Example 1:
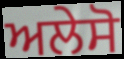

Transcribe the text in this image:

ਅਲੇਸੋ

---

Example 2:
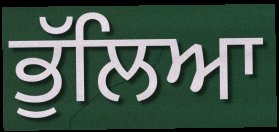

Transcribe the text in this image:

ਭੁੱਲਿਆ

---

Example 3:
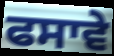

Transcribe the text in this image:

ਫਸਾਵੇ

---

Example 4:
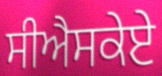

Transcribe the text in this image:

ਸੀਐਸਕੇਏ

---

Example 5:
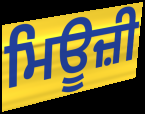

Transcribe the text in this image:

ਮਿਊਜ਼ੀ